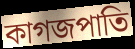
কাগজপাতি